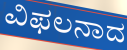
ವಿಫಲನಾದ